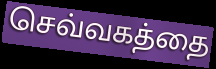
செவ்வகத்தை